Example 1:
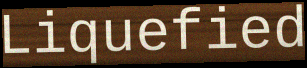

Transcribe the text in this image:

Liquefied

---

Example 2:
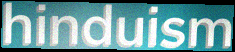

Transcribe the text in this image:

hinduism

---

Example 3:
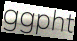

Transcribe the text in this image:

ggpht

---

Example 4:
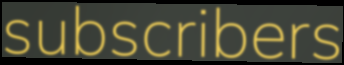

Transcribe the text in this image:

subscribers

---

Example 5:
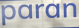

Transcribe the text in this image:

paran